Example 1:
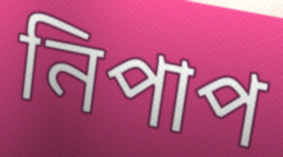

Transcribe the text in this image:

নিপাপ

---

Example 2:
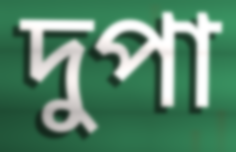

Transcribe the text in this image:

দুপা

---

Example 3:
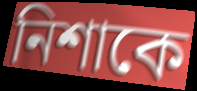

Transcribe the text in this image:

নিশাকে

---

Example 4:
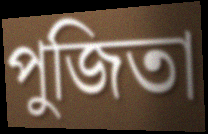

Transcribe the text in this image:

পুজিতা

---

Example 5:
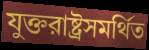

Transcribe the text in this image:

যুক্তরাষ্ট্রসমর্থিত